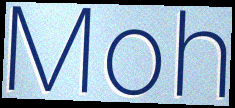
Moh